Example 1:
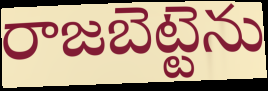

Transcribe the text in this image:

రాజబెట్టెను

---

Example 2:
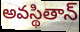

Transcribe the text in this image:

అవస్థితాన్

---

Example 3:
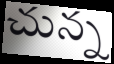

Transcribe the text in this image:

చున్న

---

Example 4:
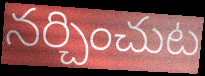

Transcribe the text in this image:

నర్చించుట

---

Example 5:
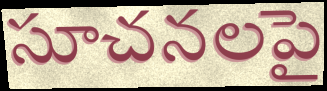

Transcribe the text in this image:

సూచనలపై